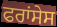
ਫਰਾਂਸੇਸ